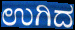
ಉಗಿದ